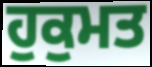
ਹੁਕੁਮਤ